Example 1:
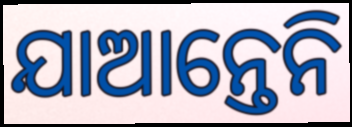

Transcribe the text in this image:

ଯାଆନ୍ତେନି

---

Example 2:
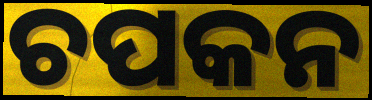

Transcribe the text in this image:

ଚପକନ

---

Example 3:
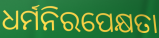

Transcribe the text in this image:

ଧର୍ମନିରପେକ୍ଷତା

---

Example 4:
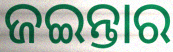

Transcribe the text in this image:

ଜଇନ୍ତାର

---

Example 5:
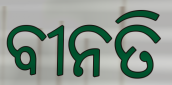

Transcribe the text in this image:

ବୀନତି